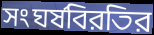
সংঘর্ষবিরতির